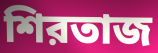
শিরতাজ